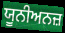
ਯੂਨੀਅਨਜ਼